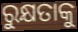
ରୁକ୍ଷତାକୁ